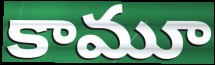
కామూ